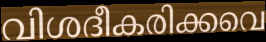
വിശദീകരിക്കവെ